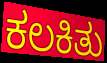
ಕಲಕಿತು